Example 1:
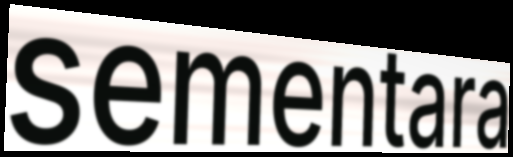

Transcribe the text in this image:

sementara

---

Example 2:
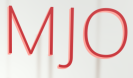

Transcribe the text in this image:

MJO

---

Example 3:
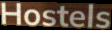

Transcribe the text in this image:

Hostels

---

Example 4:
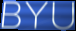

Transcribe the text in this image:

BYU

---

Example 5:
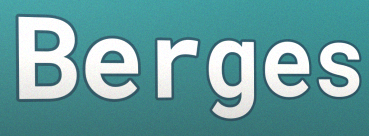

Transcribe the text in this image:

Berges